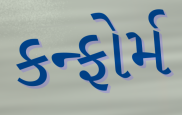
કન્ફોર્મ